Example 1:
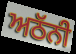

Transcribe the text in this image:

ਅਠੱਨੀ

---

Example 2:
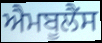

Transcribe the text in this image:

ਐਮਬੂਲੈਂਸ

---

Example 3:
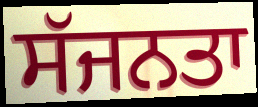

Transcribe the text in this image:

ਸੱਜਨਤਾ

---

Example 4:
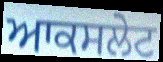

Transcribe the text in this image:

ਆਕਸਲੇਟ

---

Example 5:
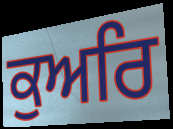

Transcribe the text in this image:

ਕੁਅਰਿ